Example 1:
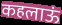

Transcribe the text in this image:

कहलाऊं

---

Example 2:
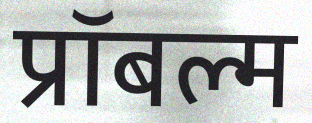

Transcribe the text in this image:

प्रॉबल्म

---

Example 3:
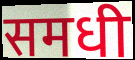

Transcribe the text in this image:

समधी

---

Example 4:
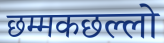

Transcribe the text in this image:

छम्मकछल्लो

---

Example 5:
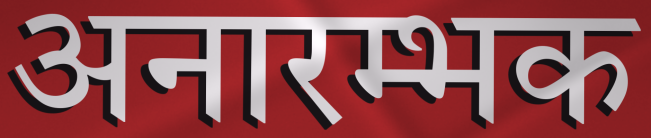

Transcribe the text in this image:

अनारम्भक